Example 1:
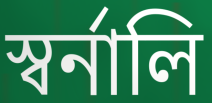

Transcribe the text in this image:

স্বর্নালি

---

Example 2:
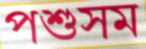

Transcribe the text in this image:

পশুসম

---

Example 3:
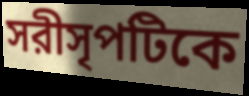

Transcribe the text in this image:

সরীসৃপটিকে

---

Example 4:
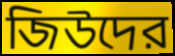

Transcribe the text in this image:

জিউদের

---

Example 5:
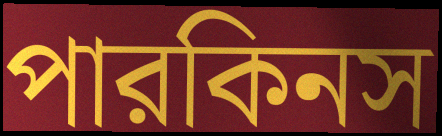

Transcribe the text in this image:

পারকিনস